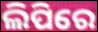
ଲିପିରେ